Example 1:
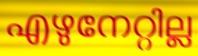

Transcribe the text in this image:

എഴുനേറ്റില്ല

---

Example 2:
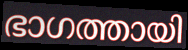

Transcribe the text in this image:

ഭാഗത്തായി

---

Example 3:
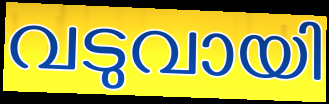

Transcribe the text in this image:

വടുവായി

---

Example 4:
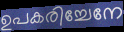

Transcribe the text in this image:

ഉപകരിച്ചേനേ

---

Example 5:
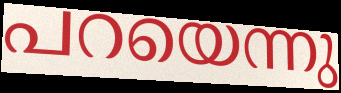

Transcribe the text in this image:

പറയെന്നു